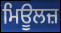
ਮਿਊਲਜ਼